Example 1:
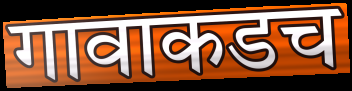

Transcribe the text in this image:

गावाकडच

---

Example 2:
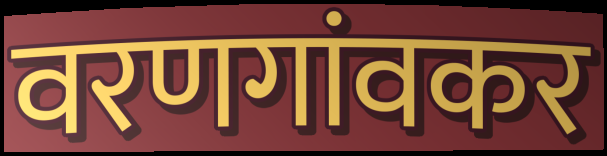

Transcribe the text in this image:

वरणगांवकर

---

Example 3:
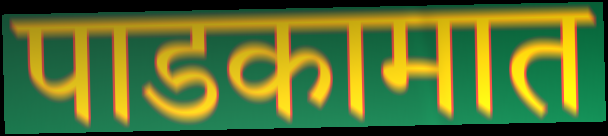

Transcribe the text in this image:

पाडकामात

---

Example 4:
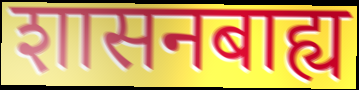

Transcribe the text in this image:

शासनबाह्य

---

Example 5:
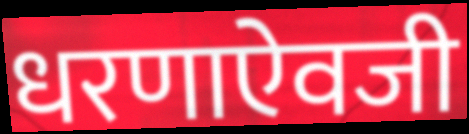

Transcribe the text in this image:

धरणाऐवजी